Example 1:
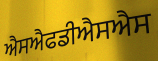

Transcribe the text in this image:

ਐਸਐਫਡੀਐਸਐਸ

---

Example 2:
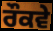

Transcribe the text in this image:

ਰੌਕਵੇ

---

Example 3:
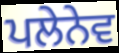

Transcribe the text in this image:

ਪਲੇਨੇਵ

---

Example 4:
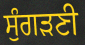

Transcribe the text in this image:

ਸੁੰਗੜਣੀ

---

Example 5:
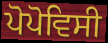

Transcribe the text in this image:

ਪੋਪੋਵਿਸੀ